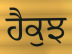
ਹੈਕੁਝ